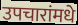
उपचारांमधे